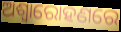
ଅଶ୍ୱାରୋହଣରେ